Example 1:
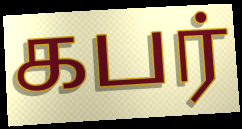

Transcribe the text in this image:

கபர்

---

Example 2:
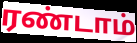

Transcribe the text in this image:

ரண்டாம்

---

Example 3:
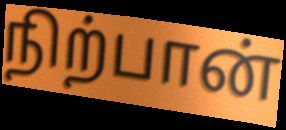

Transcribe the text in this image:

நிற்பான்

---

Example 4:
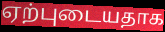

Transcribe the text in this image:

ஏற்புடையதாக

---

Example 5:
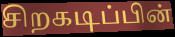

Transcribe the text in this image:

சிறகடிப்பின்